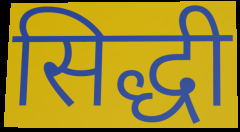
सिद्धी